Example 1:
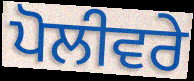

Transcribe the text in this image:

ਪੋਲੀਵਰੇ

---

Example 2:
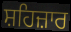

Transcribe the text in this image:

ਸ਼ਹਿਜ਼ਾਰ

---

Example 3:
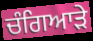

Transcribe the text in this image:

ਚੰਗਿਆੜੇ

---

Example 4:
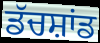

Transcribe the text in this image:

ਡੱਚਸ਼ਾਂਡ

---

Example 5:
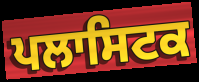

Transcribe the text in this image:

ਪਲਾਸਿਟਕ